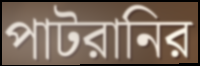
পাটরানির